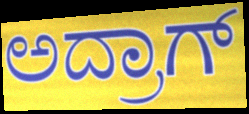
ಅದ್ರಾಗ್